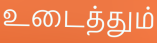
உடைத்தும்